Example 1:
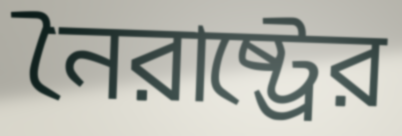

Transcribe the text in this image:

নৈরাষ্ট্রের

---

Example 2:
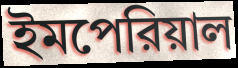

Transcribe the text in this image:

ইমপেরিয়াল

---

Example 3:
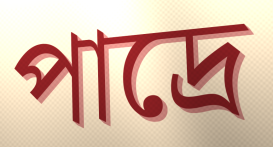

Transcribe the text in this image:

পাদ্রে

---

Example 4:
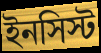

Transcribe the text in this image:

ইনসিস্ট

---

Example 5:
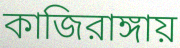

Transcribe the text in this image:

কাজিরাঙ্গায়